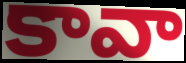
కావా